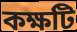
কক্ষটি